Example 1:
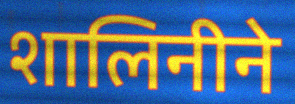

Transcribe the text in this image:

शालिनीने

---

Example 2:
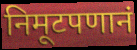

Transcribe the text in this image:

निमूटपणानं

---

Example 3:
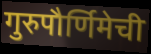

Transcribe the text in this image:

गुरुपौर्णिमेची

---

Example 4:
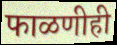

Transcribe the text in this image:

फाळणीही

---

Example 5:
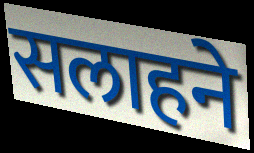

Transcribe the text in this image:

सलाहने